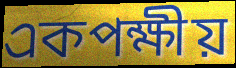
একপক্ষীয়